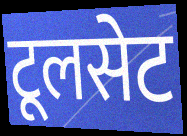
टूलसेट